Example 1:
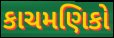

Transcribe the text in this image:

કાચમણિકો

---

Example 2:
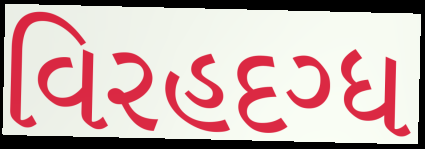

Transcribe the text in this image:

વિરહદગ્ધ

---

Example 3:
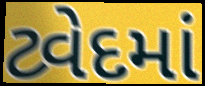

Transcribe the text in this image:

ટ્વેદમાં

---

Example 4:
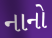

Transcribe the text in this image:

નાનો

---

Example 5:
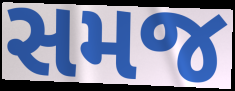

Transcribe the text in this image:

સમજ